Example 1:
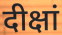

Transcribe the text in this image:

दीक्षां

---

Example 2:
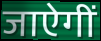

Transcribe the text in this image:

जाऐगीं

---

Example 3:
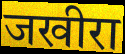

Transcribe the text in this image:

जखीरा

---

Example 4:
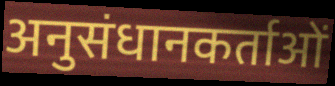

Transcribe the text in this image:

अनुसंधानकर्ताओं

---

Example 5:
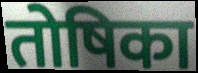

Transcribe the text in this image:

तोषिका